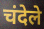
चंदेले